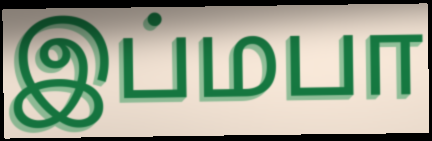
இப்மபா